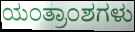
ಯಂತ್ರಾಂಶಗಳು